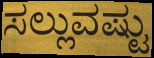
ಸಲ್ಲುವಷ್ಟು